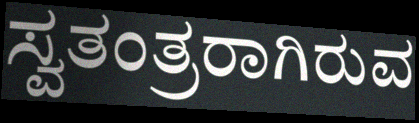
ಸ್ವತಂತ್ರರಾಗಿರುವ